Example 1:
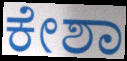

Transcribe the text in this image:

ಕೇಶಾ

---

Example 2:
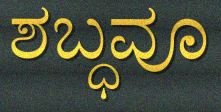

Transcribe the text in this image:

ಶಬ್ಧವೂ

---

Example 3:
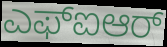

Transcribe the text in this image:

ಎಫ್ಐಆರ್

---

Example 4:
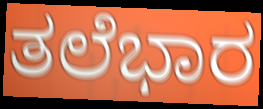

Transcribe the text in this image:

ತಲೆಭಾರ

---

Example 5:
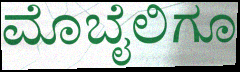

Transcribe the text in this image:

ಮೊಬೈಲಿಗೂ